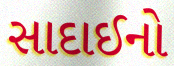
સાદાઈનો